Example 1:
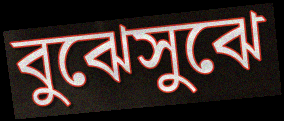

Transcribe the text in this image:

বুঝেসুঝে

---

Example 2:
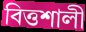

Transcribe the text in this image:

বিত্তশালী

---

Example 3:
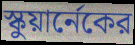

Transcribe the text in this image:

স্কুয়ার্নেকের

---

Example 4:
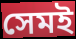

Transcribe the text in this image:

সেমই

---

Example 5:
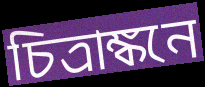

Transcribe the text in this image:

চিত্রাঙ্কনে